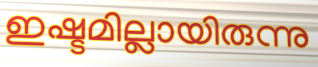
ഇഷ്ടമില്ലായിരുന്നു